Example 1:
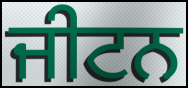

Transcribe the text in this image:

ਜੀਟਨ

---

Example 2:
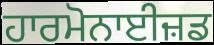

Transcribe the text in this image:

ਹਾਰਮੋਨਾਈਜ਼ਡ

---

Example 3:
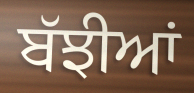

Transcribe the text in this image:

ਬੱਝੀਆਂ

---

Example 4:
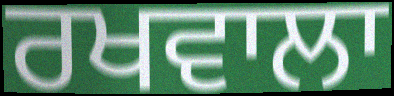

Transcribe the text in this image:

ਰਖਵਾਲਾ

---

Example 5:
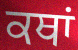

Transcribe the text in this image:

ਕਥਾਂ